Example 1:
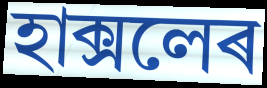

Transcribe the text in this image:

হাক্সলেৰ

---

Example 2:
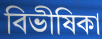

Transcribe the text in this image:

বিভীষিকা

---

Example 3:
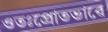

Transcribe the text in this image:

ওতঃপ্ৰোতভাৱে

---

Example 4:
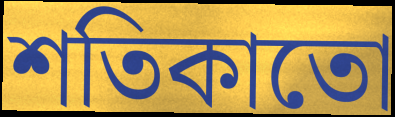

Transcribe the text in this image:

শতিকাতো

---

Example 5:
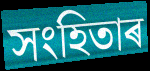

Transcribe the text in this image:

সংহিতাৰ